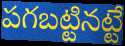
పగబట్టినట్టే